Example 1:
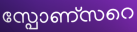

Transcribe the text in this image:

സ്പോണ്സറെ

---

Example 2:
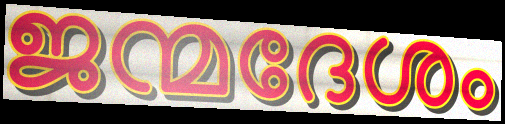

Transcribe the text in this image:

ജന്മദേശം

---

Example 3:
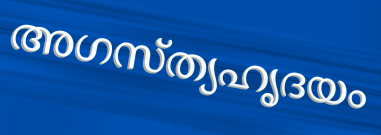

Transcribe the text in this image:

അഗസ്ത്യഹൃദയം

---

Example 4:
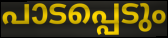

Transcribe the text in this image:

പാടപ്പെടും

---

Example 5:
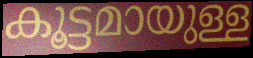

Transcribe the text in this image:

കൂട്ടമായുള്ള